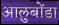
आलुबोंडा